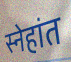
स्नेहांत